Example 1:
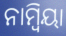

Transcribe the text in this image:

ନାମ୍ୱିୟା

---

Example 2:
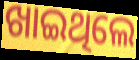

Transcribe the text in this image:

ଖାଇଥିଲେ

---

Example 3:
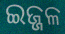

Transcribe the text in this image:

ଇଜ୍ଜଳ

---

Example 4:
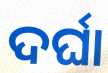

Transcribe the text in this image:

ଦର୍ଘା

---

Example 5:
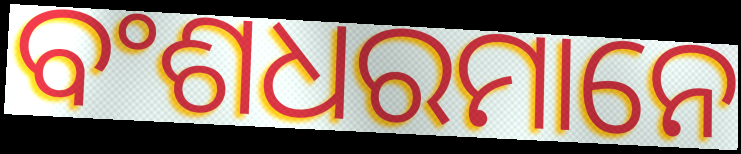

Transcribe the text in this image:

ବଂଶଧରମାନେ